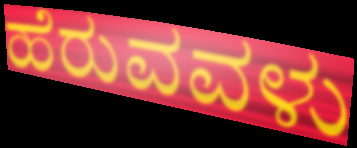
ಹೆರುವವಳು